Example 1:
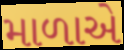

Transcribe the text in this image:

માળાએ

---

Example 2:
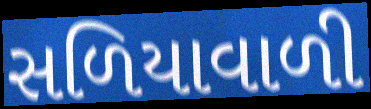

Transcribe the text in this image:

સળિયાવાળી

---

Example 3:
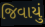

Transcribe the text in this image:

જિવાયું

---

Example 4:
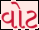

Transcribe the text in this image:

વોટ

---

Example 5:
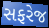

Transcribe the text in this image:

સફરેજ